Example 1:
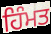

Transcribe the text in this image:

ਹਿੰਮਤ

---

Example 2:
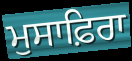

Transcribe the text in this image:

ਮੁਸਾਫ਼ਿਰਾ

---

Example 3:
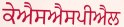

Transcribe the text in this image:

ਕੇਐਸਐਸਪੀਐਲ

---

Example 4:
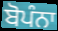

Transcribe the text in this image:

ਬੋਪੰਨਾ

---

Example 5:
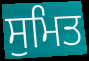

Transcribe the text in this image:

ਸੁਮਿਤ